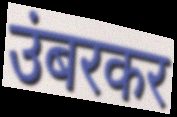
उंबरकर